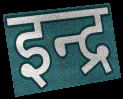
इन्द्र